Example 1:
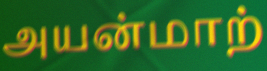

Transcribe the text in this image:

அயன்மாற்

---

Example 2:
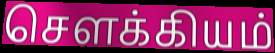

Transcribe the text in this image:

சௌக்கியம்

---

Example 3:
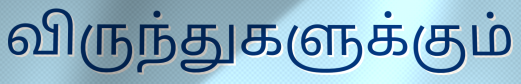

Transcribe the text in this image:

விருந்துகளுக்கும்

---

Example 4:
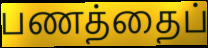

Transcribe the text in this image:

பணத்தைப்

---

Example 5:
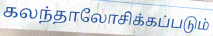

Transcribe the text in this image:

கலந்தாலோசிக்கப்படும்